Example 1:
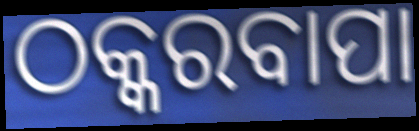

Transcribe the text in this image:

ଠକ୍କରବାପା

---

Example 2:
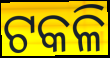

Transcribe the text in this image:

ଟକଳି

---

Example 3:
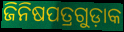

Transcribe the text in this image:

ଜିନିଷପତ୍ରଗୁଡ଼ାକ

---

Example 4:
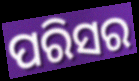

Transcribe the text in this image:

ପରିସର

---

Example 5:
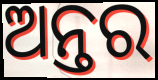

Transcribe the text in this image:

ଅନ୍ତର